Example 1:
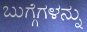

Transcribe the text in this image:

ಬುಗ್ಗೆಗಳನ್ನು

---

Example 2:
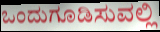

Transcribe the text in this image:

ಒಂದುಗೂಡಿಸುವಲ್ಲಿ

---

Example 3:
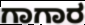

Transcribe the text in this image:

ಗಾಗಾರ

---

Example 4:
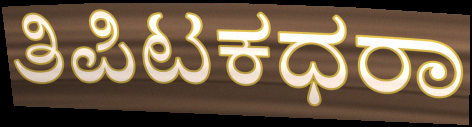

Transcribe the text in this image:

ತಿಪಿಟಕಧರಾ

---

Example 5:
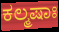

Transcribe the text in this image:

ಕಲ್ಮಷಾಃ